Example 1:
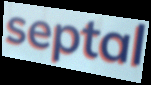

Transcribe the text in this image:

septal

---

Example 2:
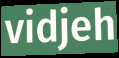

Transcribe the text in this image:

vidjeh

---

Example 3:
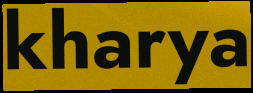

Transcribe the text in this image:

kharya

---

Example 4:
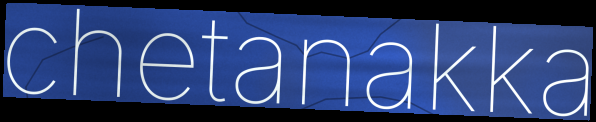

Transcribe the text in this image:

chetanakka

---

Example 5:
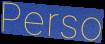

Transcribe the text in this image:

Perso